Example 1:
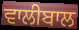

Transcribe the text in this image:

ਵਾਲੀਬਾਲ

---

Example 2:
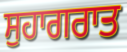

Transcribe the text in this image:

ਸੁਹਾਗਰਾਤ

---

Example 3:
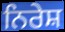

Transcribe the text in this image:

ਨਿਰੇਸ਼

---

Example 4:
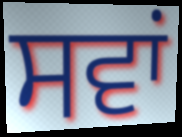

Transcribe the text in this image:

ਸਵਾਂ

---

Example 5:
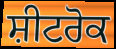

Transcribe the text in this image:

ਸ਼ੀਟਰੋਕ